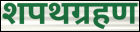
शपथग्रहण